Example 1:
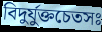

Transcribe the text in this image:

বিদুর্যুক্তচেতসঃ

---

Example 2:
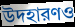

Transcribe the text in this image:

উদহারণও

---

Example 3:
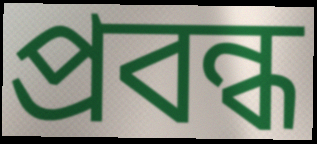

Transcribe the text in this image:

প্রবন্ধ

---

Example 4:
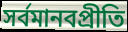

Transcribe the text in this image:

সর্বমানবপ্রীতি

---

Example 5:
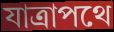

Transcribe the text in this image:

যাত্রাপথে